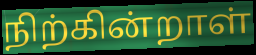
நிற்கின்றாள்